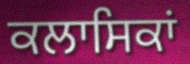
ਕਲਾਸਿਕਾਂ